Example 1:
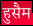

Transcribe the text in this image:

हुसैम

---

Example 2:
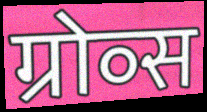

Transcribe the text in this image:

ग्रोव्स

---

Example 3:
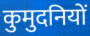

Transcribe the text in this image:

कुमुदनियों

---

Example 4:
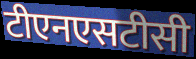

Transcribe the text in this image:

टीएनएसटीसी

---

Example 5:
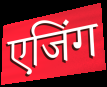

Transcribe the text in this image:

एजिंग